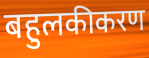
बहुलकीकरण